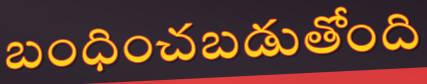
బంధించబడుతోంది